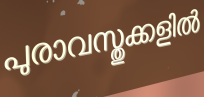
പുരാവസ്തുക്കളിൽ